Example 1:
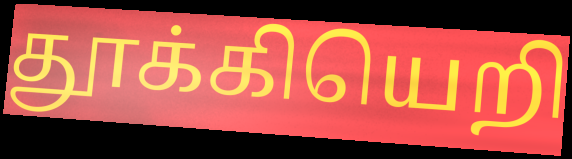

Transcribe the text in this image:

தூக்கியெறி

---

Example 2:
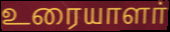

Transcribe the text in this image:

உரையாளர்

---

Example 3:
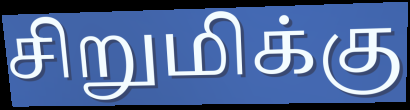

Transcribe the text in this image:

சிறுமிக்கு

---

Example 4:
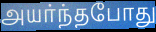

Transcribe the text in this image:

அயர்ந்தபோது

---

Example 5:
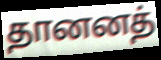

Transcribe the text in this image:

தானனத்